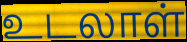
உடலாள்